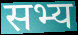
सभ्य